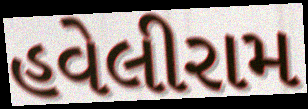
હવેલીરામ